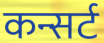
कन्सर्ट